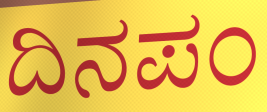
ದಿನಪಂ